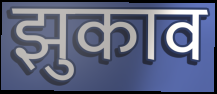
झुकाव